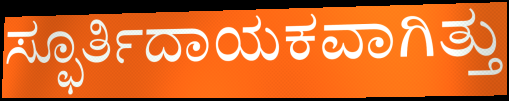
ಸ್ಫೂರ್ತಿದಾಯಕವಾಗಿತ್ತು